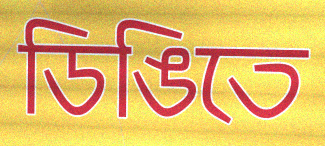
ডিঙিতে